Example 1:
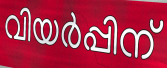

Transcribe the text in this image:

വിയർപ്പിന്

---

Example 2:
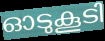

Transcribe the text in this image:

ഓടുകൂടി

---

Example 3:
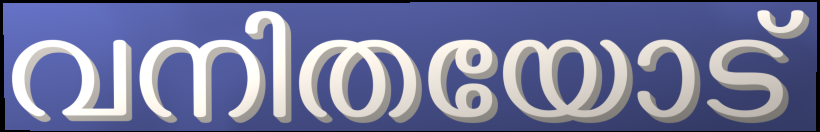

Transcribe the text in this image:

വനിതയോട്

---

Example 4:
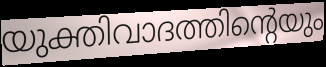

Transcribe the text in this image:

യുക്തിവാദത്തിന്റെയും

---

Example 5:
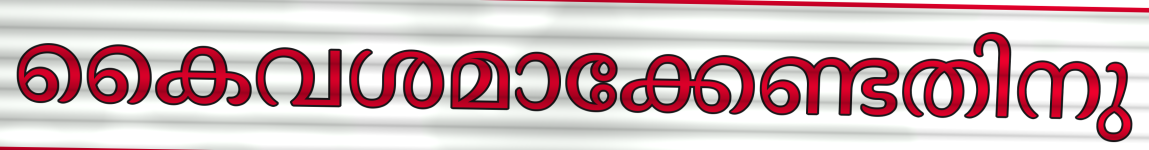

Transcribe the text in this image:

കൈവശമാക്കേണ്ടതിനു